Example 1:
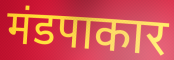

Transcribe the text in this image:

मंडपाकार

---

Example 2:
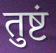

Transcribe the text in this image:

तुष्टं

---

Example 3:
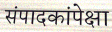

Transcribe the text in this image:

संपादकांपेक्षा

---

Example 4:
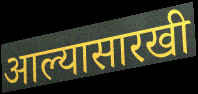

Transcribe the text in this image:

आल्यासारखी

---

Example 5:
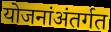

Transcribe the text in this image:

योजनांअंतर्गत